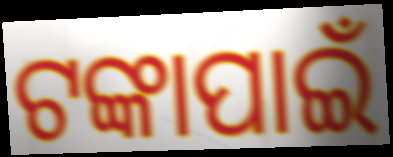
ଟଙ୍କାପାଇଁ